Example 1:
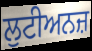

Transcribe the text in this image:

ਲੁਟੀਅਨਜ਼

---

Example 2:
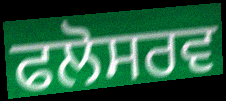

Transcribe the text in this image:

ਫਲੋਸਰਵ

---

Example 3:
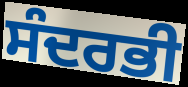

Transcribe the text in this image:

ਸੰਦਰਭੀ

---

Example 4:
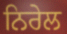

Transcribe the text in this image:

ਨਿਰੇਲ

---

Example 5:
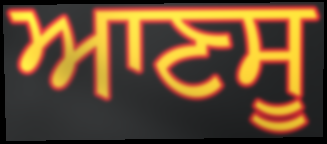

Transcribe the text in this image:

ਆਣਸੂ